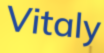
Vitaly